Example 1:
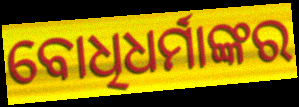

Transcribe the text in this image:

ବୋଧିଧର୍ମାଙ୍କର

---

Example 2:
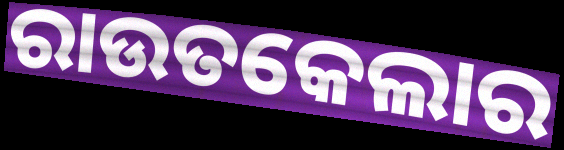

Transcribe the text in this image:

ରାଉତକେଲାର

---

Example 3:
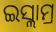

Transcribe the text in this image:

ଇସ୍ଲାମ୍ର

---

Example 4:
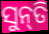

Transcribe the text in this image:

ସୁନ୍‌ତି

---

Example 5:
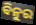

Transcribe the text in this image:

ବିନୁର